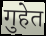
गुहेत